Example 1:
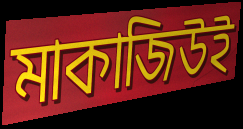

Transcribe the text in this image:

মাকাজিউই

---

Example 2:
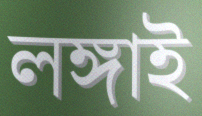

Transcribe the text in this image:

লঙ্গাই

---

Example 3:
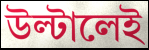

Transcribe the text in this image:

উল্টালেই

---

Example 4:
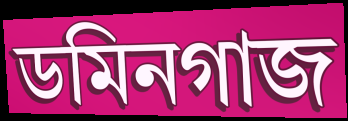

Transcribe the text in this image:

ডমিনগাজ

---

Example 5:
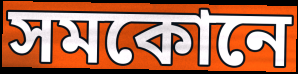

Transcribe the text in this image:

সমকোনে